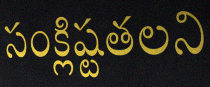
సంక్లిష్టతలని